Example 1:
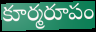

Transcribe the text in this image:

కూర్మరూపం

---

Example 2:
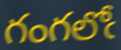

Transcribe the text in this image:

గంగలోఁ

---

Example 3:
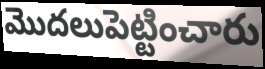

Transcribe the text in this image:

మొదలుపెట్టించారు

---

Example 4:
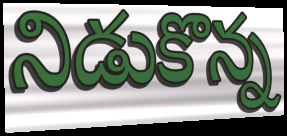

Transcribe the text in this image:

నిడుకొన్న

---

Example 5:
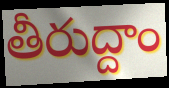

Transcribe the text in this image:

తీరుద్దాం